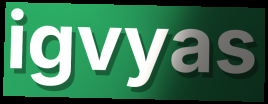
igvyas